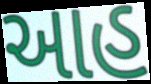
આહ